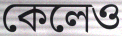
কেলেও